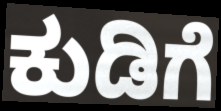
ಕುಡಿಗೆ